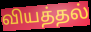
வியத்தல்